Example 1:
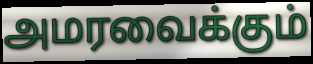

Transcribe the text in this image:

அமரவைக்கும்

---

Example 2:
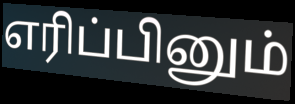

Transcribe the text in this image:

எரிப்பினும்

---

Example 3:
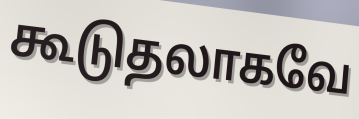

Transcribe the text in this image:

கூடுதலாகவே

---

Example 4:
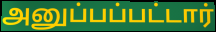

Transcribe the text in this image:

அனுப்பப்பட்டார்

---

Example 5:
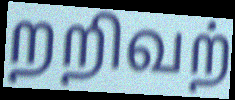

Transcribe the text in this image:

றறிவற்